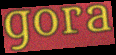
gora